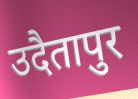
उदैतापुर